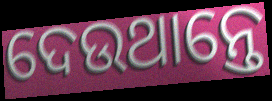
ଦେଉଥାନ୍ତେ